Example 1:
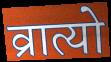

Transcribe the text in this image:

व्रात्यो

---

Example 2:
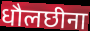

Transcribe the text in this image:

धौलछीना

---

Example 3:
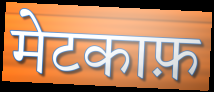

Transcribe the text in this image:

मेटकाफ़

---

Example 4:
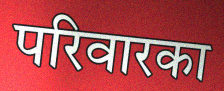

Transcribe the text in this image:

परिवारका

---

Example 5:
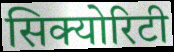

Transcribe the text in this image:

सिक्‍योरिटी